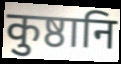
कुष्ठानि